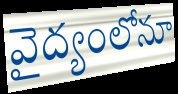
వైద్యంలోనూ